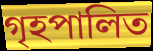
গৃহপালিত